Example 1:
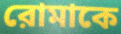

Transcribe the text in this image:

রোমাকে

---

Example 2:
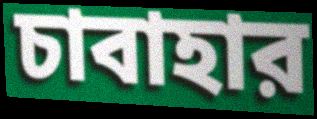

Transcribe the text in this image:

চাবাহার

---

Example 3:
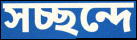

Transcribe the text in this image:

সচ্ছন্দে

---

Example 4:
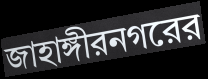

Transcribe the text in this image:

জাহাঙ্গীরনগরের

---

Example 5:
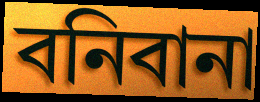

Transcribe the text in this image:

বনিবানা